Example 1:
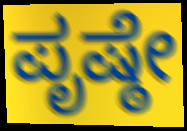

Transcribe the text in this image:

ಪೃಷ್ಠೇ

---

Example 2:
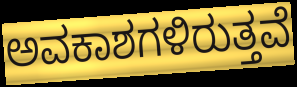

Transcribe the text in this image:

ಅವಕಾಶಗಳಿರುತ್ತವೆ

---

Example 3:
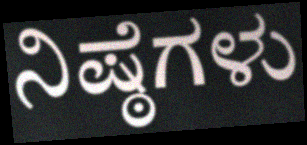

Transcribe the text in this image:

ನಿಷ್ಠೆಗಳು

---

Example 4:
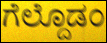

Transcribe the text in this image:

ಗೆಲ್ದೊಡಂ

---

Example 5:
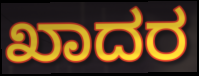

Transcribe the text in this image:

ಖಾದರ